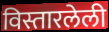
विस्तारलेली